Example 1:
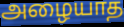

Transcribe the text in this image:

அழையாத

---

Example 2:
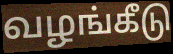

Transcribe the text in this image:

வழங்கீடு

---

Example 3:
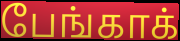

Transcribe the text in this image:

பேங்காக்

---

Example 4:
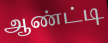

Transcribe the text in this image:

ஆண்ட்டி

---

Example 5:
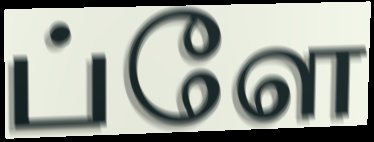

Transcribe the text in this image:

ப்ளே